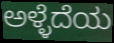
ಅಳ್ಳೆದೆಯ